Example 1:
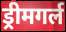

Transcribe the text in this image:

ड्रीमगर्ल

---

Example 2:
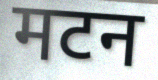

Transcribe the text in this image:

मटन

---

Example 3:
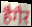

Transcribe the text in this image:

हैगैर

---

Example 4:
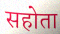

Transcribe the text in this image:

सहोता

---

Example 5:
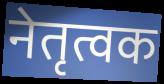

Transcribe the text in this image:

नेतृत्वक